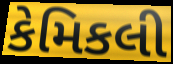
કેમિકલી